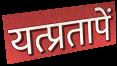
यत्प्रतापें